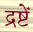
द्रष्टें